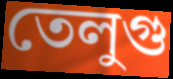
তেলুগু